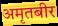
अमृतबीर